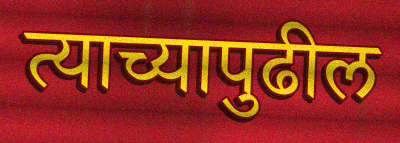
त्याच्यापुढील